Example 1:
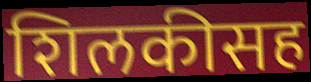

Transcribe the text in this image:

शिलकीसह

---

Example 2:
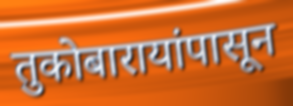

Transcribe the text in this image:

तुकोबारायांपासून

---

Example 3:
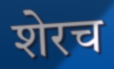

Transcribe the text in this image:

शेरच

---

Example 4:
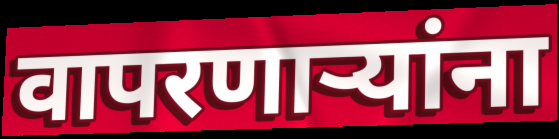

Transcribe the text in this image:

वापरणाऱ्यांना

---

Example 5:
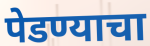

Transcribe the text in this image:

पेडण्याचा